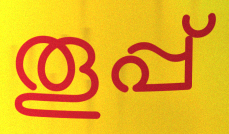
തൂപ്പ്